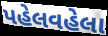
પહેલવહેલા